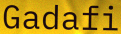
Gadafi